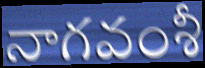
నాగవంశీ